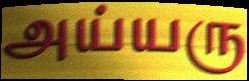
அய்யரு